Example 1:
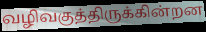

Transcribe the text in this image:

வழிவகுத்திருக்கின்றன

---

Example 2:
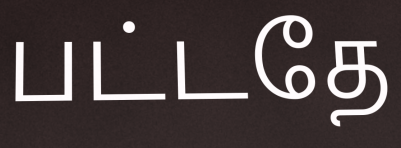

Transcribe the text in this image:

பட்டதே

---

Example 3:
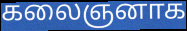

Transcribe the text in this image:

கலைஞனாக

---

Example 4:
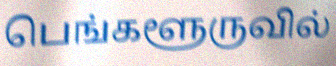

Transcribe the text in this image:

பெங்களூருவில்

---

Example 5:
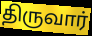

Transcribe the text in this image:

திருவார்